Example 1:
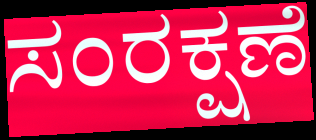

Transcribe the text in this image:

ಸಂರಕ್ಷಣೆ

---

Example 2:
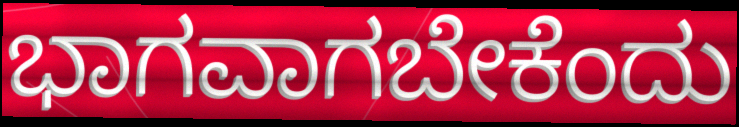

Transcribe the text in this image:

ಭಾಗವಾಗಬೇಕೆಂದು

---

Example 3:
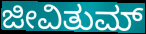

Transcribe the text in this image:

ಜೀವಿತುಮ್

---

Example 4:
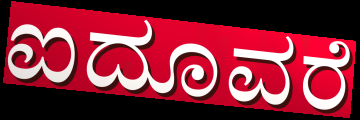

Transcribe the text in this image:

ಐದೂವರೆ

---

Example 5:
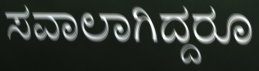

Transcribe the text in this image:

ಸವಾಲಾಗಿದ್ದರೂ